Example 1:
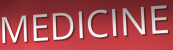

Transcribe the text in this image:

MEDICINE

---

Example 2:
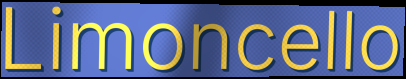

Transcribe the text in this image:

Limoncello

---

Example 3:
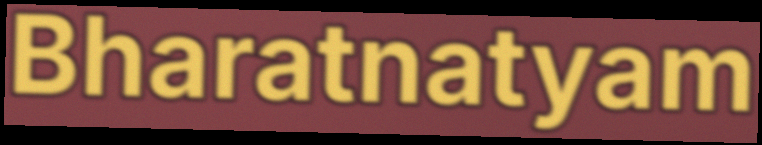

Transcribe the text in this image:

Bharatnatyam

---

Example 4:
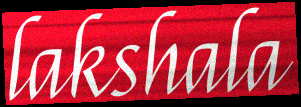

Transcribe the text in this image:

lakshala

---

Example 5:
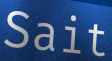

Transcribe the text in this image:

Sait